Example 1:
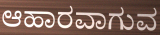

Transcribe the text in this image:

ಆಹಾರವಾಗುವ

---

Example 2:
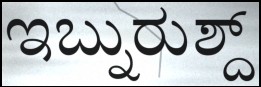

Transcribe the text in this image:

ಇಬ್ನುರುಶ್ದ್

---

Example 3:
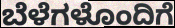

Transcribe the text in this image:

ಬೆಳೆಗಳೊಂದಿಗೆ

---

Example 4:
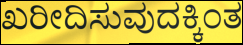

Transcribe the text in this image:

ಖರೀದಿಸುವುದಕ್ಕಿಂತ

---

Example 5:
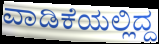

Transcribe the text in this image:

ವಾಡಿಕೆಯಲ್ಲಿದ್ದ